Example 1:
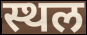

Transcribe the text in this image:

स्थल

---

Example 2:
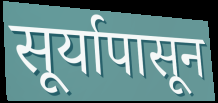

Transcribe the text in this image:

सूर्यापासून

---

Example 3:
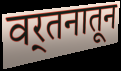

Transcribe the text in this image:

वर्तनातून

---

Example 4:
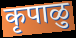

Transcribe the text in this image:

कृपाळु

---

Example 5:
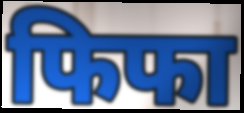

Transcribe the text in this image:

फिफा